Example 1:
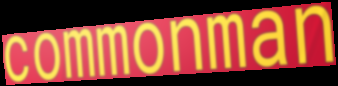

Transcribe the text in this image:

commonman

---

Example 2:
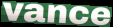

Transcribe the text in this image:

vance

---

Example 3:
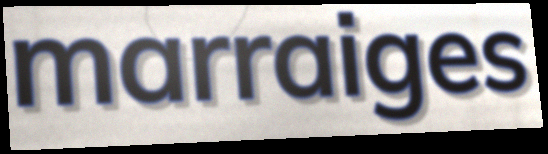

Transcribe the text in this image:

marraiges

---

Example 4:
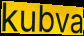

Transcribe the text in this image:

kubva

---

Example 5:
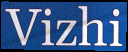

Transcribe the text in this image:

Vizhi